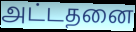
அட்டதனை